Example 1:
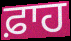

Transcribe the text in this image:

ਫ਼ਾਹ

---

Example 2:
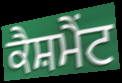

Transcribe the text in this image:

ਕੈਸ਼ਮੈਂਟ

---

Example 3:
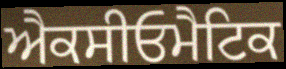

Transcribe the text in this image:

ਐਕਸੀਓਮੈਟਿਕ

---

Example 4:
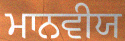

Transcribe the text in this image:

ਮਾਨਵੀਯ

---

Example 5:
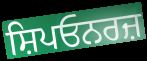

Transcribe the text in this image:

ਸ਼ਿਪਓਨਰਜ਼